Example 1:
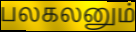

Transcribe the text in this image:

பலகலனும்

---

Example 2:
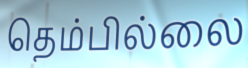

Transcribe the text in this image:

தெம்பில்லை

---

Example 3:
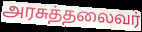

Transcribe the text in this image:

அரசுத்தலைவர்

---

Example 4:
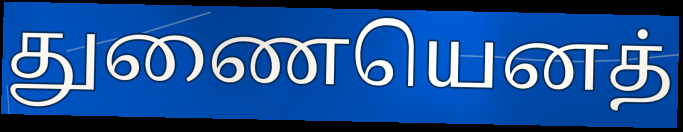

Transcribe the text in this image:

துணையெனத்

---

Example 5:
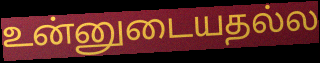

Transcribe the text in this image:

உன்னுடையதல்ல